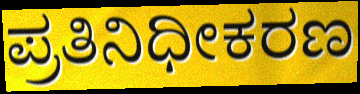
ಪ್ರತಿನಿಧೀಕರಣ